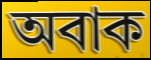
অবাক